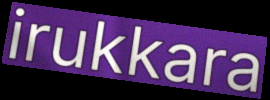
irukkara